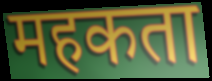
महकता